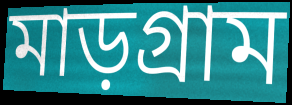
মাড়গ্রাম